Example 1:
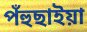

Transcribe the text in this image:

পঁহুছাইয়া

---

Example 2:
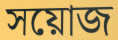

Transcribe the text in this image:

সয়োজ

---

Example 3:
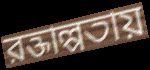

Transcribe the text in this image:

রক্তাল্পতায়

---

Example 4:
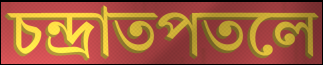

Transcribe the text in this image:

চন্দ্রাতপতলে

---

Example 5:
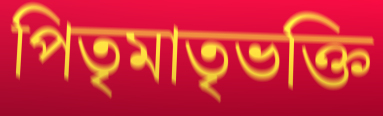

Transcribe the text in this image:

পিতৃমাতৃভক্তি